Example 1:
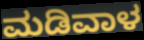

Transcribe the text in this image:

ಮಡಿವಾಳ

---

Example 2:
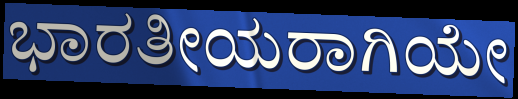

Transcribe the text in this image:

ಭಾರತೀಯರಾಗಿಯೇ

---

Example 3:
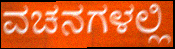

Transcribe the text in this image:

ವಚನಗಳಲ್ಲಿ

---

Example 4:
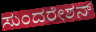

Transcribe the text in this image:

ಸುಂದರೇಶನ್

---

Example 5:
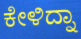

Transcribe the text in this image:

ಕೇಳಿದ್ನಾ